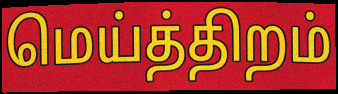
மெய்த்திறம்